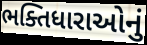
ભક્તિધારાઓનું